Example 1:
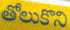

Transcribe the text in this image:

తోలుకొని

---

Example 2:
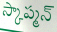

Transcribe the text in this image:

స్కాప్మన్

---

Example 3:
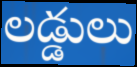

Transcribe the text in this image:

లడ్డులు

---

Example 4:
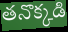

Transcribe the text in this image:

తనొక్కడి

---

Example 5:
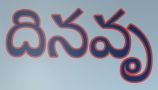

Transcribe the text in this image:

దినవృ